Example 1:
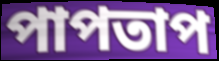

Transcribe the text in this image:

পাপতাপ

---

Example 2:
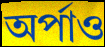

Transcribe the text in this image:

অর্পাও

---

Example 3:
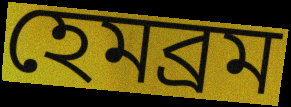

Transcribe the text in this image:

হেমব্রম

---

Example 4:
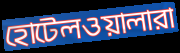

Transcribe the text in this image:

হোটেলওয়ালারা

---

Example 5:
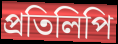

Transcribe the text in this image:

প্রতিলিপি